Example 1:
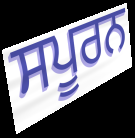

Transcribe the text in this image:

ਸਪੂਰਨ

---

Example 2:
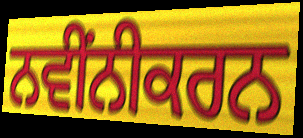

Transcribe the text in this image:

ਨਵੀਂਨੀਕਰਨ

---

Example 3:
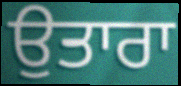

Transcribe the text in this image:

ਉਤਾਰਾ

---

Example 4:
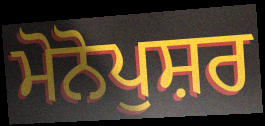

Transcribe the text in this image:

ਮੋਨੋਪੁਸ਼ਰ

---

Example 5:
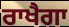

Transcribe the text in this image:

ਰਾਖੈਗਾ